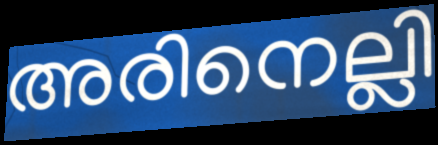
അരിനെല്ലി